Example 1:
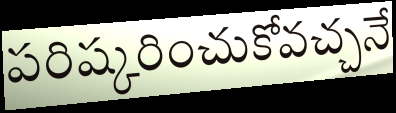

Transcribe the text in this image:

పరిష్కరించుకోవచ్చనే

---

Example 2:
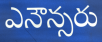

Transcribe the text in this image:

ఎనౌన్సరు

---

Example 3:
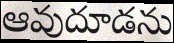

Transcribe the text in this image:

ఆవుదూడను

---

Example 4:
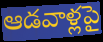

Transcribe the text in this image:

ఆడవాళ్లపై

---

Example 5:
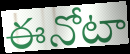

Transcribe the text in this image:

ఈనోటా